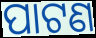
ପାଟଣ